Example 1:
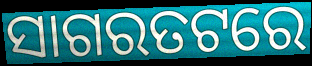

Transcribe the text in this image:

ସାଗରତଟରେ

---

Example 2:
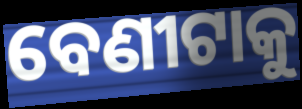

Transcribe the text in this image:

ବେଣୀଟାକୁ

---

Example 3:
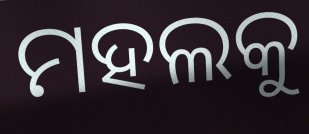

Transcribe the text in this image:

ମହଲକୁ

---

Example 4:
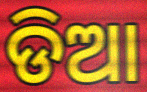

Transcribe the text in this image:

ଡିଆ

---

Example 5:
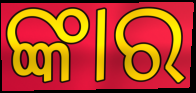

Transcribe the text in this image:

ଙ୍କାର